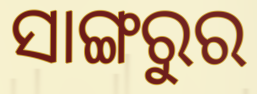
ସାଙ୍ଗରୁର